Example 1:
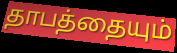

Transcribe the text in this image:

தாபத்தையும்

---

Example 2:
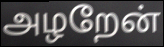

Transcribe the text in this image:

அழறேன்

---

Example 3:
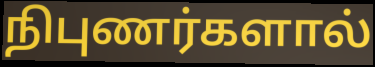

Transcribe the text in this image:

நிபுணர்களால்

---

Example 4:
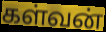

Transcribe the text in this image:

கள்வன்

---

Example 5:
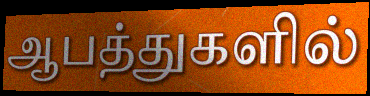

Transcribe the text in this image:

ஆபத்துகளில்